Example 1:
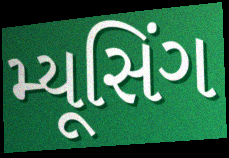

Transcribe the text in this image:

મ્યૂસિંગ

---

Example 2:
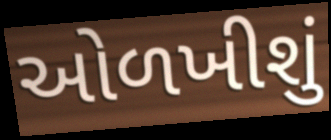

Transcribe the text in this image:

ઓળખીશું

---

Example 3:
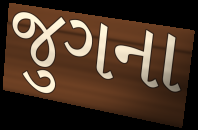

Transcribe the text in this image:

જુગના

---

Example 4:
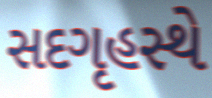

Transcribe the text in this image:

સદગૃહસ્થે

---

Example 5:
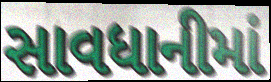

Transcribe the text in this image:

સાવધાનીમાં